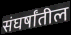
संघर्षांतील